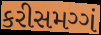
કરીસમગ્ગં